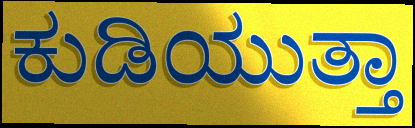
ಕುಡಿಯುತ್ತಾ